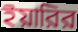
ইয়ারির